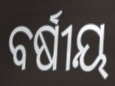
ବର୍ଷୀୟ